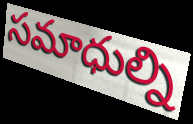
సమాధుల్ని